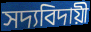
সদ্যবিদায়ী